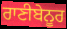
ਰਾਣੀਬੇਨੂਰ